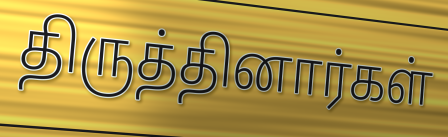
திருத்தினார்கள்